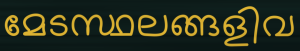
മേടസ്ഥലങ്ങളിവ